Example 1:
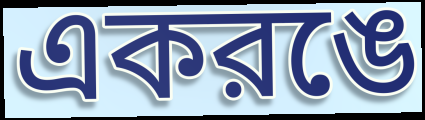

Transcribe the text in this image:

একরঙে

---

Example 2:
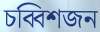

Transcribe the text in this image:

চব্বিশজন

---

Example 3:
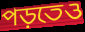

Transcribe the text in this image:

পড়তেও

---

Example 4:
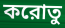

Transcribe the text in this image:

করোতু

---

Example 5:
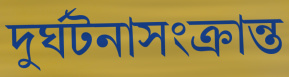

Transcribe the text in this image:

দুর্ঘটনাসংক্রান্ত